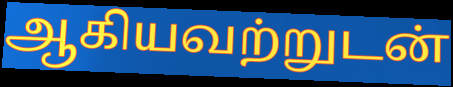
ஆகியவற்றுடன்